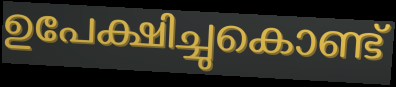
ഉപേക്ഷിച്ചുകൊണ്ട്